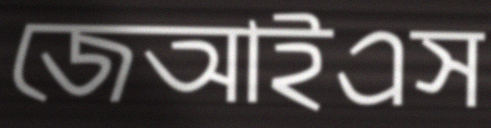
জেআইএস